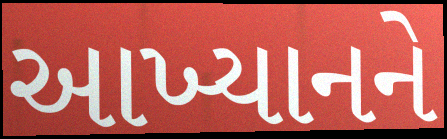
આખ્યાનને